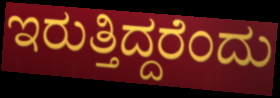
ಇರುತ್ತಿದ್ದರೆಂದು